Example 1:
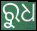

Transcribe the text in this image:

ରୁଧ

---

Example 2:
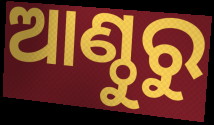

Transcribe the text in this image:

ଆଣ୍ଠୁରୁ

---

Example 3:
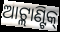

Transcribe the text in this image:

ଆଟ୍ଲାଣ୍ଟିକ୍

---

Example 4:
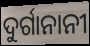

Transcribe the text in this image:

ଦୁର୍ଗାନାନୀ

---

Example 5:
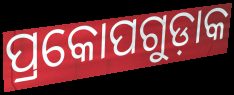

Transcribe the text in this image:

ପ୍ରକୋପଗୁଡ଼ାକ